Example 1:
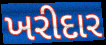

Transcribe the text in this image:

ખરીદાર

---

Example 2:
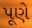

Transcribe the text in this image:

પૂણે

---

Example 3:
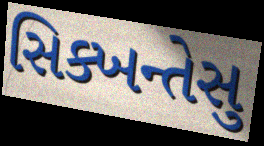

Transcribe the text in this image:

સિક્ખન્તેસુ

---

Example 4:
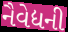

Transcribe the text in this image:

નૈવેદ્યની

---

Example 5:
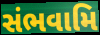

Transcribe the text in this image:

સંભવામિ